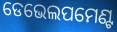
ଡେଭେଲପମେଣ୍ଟ